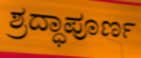
ಶ್ರದ್ಧಾಪೂರ್ಣ